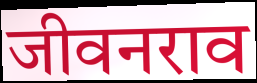
जीवनराव